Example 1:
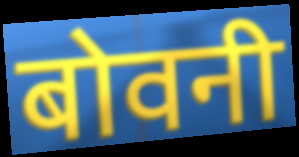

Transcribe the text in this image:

बोवनी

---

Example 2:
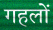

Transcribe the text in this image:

गहलों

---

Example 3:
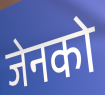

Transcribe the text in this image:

जेनको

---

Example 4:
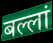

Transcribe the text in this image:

बल्लां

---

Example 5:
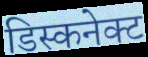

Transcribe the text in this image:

डिस्कनेक्ट